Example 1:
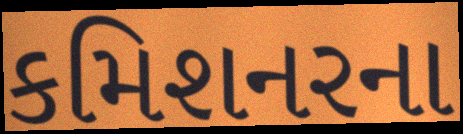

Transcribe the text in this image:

કમિશનરના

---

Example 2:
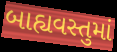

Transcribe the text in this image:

બાહ્યવસ્તુમાં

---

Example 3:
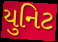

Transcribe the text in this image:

યુનિટ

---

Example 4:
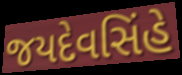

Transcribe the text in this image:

જયદેવસિંહે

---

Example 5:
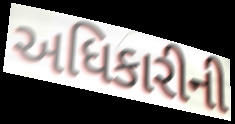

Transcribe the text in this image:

અધિકારીની